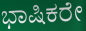
ಭಾಷಿಕರೇ